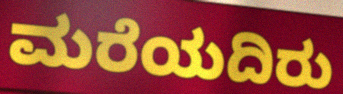
ಮರೆಯದಿರು